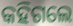
କହିଗଲେ